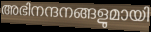
അഭിനന്ദനങ്ങളുമായി